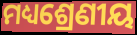
ମଧ୍ୟଶ୍ରେଣୀୟ